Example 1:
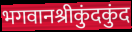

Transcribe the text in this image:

भगवानश्रीकुंदकुंद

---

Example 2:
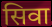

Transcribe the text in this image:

सिवा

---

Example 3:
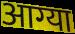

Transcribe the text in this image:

आग्या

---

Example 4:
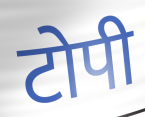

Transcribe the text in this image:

टोपी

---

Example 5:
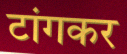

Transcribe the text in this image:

टांगकर